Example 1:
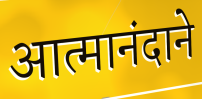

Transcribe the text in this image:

आत्मानंदाने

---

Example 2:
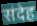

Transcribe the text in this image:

संदेह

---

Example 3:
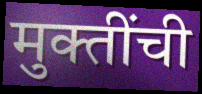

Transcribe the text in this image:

मुक्तींची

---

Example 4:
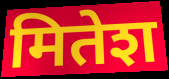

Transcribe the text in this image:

मितेश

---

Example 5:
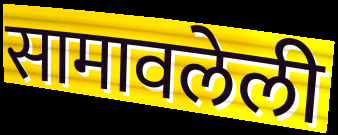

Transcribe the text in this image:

सामावलेली